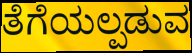
ತೆಗೆಯಲ್ಪಡುವ